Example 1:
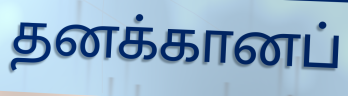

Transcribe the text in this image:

தனக்கானப்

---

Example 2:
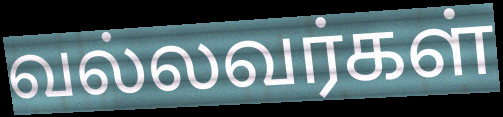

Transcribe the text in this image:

வல்லவர்கள்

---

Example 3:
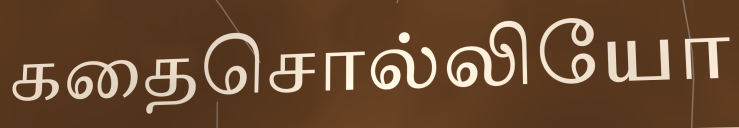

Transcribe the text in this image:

கதைசொல்லியோ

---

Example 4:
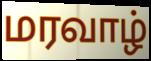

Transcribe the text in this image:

மரவாழ்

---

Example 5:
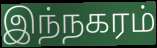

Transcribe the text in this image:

இந்நகரம்